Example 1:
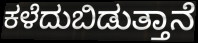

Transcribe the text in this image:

ಕಳೆದುಬಿಡುತ್ತಾನೆ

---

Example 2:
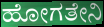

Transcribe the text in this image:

ಹೋಗತೇನಿ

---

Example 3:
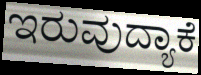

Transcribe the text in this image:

ಇರುವುದ್ಯಾಕೆ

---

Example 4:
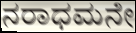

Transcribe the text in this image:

ನರಾಧಮನೇ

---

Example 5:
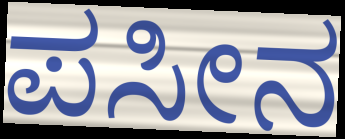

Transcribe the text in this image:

ಪಸೀನ